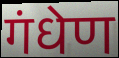
गंधेण